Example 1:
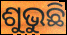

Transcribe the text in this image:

ଶୁଭୁଛି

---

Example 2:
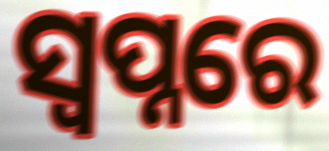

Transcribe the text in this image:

ସ୍ୱପ୍ନରେ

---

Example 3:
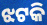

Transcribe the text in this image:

ଝଟକି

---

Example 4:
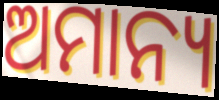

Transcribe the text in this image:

ଅମାନ୍ୟ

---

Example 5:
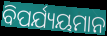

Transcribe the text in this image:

ବିପର୍ଯ୍ୟୟମାନ